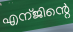
എന്ജിന്റെ